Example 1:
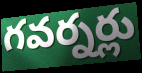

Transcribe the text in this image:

గవర్నర్లు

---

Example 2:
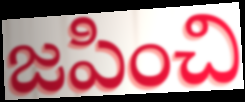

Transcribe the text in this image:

జపించి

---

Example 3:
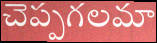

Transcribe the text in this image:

చెప్పగలమా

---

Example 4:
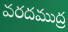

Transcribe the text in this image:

వరదముద్ర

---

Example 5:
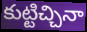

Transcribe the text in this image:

కుట్టిచ్చినా